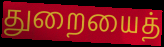
துறையைத்